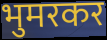
भुमरकर